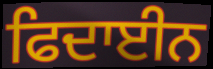
ਫਿਦਾਈਨ